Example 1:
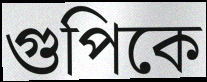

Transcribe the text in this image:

গুপিকে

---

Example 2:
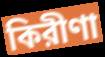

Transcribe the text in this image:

কিরীণা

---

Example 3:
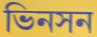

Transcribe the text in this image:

ভিনসন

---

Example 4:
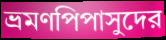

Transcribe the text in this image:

ভ্রমণপিপাসুদের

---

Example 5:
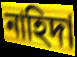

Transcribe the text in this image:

নাহিদা